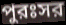
পুরঃসর